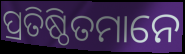
ପ୍ରତିଷ୍ଠିତମାନେ